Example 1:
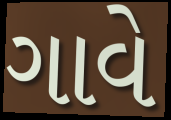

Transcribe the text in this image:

ગાવે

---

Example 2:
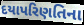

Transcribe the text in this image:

દયાપરિણતિના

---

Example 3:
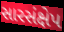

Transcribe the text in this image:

સારસંક્ષેપ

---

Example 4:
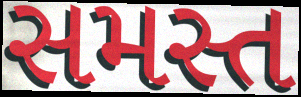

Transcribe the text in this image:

સમસ્ત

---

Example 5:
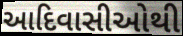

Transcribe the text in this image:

આદિવાસીઓથી